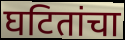
घटितांचा